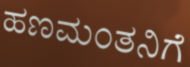
ಹಣಮಂತನಿಗೆ